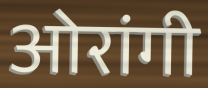
ओरांगी